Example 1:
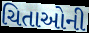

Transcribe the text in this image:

ચિતાઓની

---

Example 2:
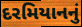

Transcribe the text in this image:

દરમિયાનનું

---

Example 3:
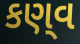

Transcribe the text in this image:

કણ્‌વ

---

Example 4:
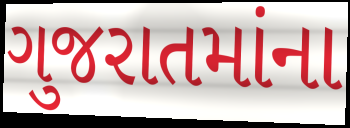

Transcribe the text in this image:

ગુજરાતમાંના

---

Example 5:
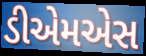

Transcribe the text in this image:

ડીએમએસ